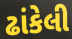
ઢાંકેલી